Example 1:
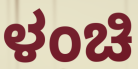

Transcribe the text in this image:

ಳಂಚಿ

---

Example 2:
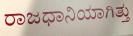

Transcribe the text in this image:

ರಾಜಧಾನಿಯಾಗಿತ್ತು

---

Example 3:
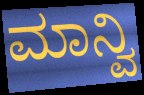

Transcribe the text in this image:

ಮಾನ್ವಿ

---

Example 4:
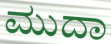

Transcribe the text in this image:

ಮುದಾ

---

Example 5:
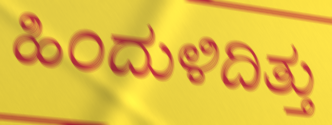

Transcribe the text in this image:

ಹಿಂದುಳಿದಿತ್ತು